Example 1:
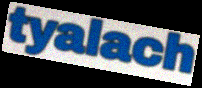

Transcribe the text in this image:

tyalach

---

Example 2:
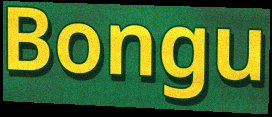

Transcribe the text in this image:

Bongu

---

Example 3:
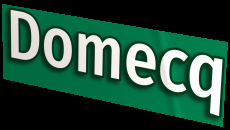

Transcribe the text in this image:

Domecq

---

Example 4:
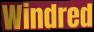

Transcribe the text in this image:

Windred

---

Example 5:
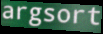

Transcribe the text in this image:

argsort